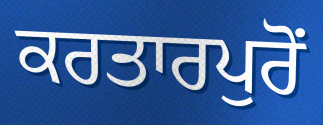
ਕਰਤਾਰਪੁਰੋਂ